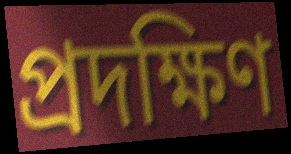
প্রদক্ষিণ